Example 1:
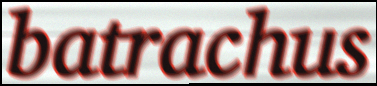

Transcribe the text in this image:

batrachus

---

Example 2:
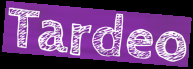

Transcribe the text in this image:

Tardeo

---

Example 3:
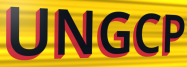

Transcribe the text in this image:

UNGCP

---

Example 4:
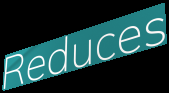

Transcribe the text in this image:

Reduces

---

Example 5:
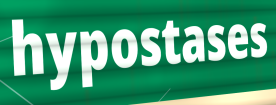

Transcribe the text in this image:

hypostases